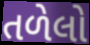
તળેલો